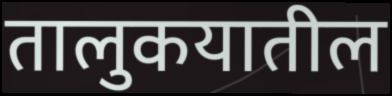
तालुकयातील